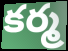
కర్మ